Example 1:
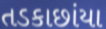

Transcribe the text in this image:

તડકાછાંયા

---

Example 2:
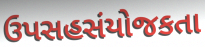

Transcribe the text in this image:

ઉપસહસંયોજકતા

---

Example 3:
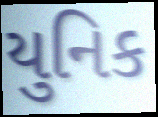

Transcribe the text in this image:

યુનિક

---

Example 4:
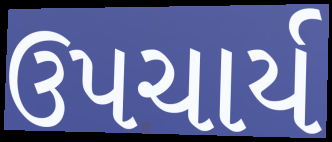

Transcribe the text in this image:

ઉપચાર્ય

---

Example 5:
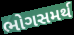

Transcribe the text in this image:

ભોગસમર્થ